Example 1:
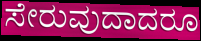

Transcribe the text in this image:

ಸೇರುವುದಾದರೂ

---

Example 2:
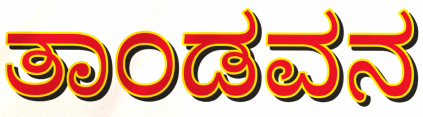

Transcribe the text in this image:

ತಾಂಡವನ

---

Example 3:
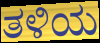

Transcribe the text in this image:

ತಳಿಯ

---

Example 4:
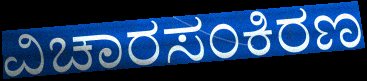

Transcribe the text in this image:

ವಿಚಾರಸಂಕಿರಣ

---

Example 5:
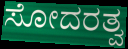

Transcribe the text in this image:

ಸೋದರತ್ವ